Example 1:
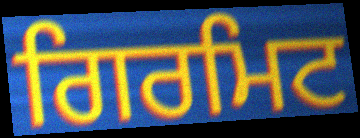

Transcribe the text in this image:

ਗਿਰਮਿਟ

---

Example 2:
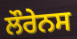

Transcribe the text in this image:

ਲੌਰੇਨਸ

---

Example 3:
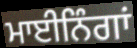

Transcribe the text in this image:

ਮਾਈਨਿੰਗਾਂ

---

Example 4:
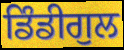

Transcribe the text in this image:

ਡਿੰਡੀਗੁਲ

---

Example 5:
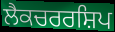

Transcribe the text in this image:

ਲੈਕਚਰਰਸ਼ਿਪ